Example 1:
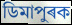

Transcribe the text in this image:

ডিমাপুৰক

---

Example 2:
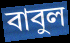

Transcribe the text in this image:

বাবুল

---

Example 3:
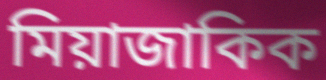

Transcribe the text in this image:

মিয়াজাকিক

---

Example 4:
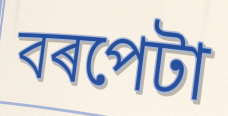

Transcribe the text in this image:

বৰপেটা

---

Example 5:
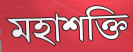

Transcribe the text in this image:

মহাশক্তি